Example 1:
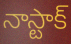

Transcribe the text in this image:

నాస్టాక్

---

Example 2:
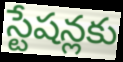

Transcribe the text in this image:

స్టేషన్లకు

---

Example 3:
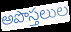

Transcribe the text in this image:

అపొస్తలుల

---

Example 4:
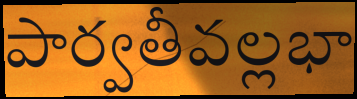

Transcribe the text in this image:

పార్వతీవల్లభా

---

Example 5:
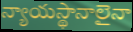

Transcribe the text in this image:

న్యాయస్థానాలైనా